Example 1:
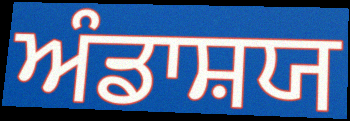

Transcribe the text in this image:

ਅੰਡਾਸ਼ਯ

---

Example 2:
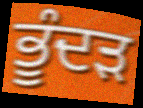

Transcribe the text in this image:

ਭੂੰਦੜ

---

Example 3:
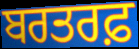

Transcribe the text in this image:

ਬਰਤਰਫ਼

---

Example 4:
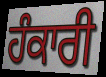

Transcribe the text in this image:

ਹੰਕਾਰੀ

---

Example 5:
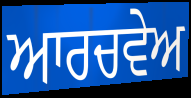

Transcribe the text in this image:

ਆਰਚਵੇਅ